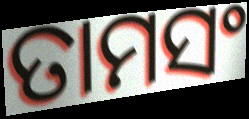
ତାମସଂ